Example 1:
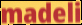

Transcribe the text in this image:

madeli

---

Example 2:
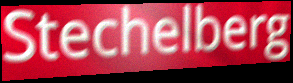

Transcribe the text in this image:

Stechelberg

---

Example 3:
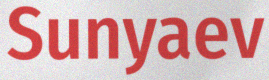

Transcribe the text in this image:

Sunyaev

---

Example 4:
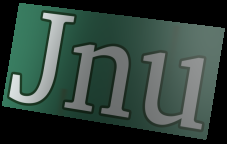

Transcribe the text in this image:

Jnu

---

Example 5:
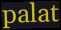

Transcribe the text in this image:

palat